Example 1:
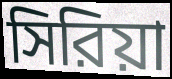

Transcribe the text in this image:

সিরিয়া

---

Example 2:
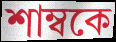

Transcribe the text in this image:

শাম্বকে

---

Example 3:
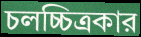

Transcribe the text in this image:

চলচ্চিত্রকার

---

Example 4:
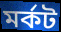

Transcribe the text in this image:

মর্কট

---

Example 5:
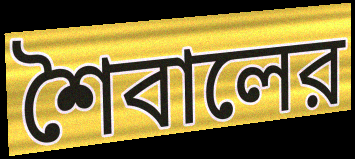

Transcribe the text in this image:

শৈবালের